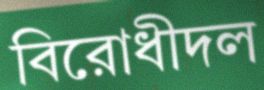
বিরোধীদল